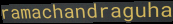
ramachandraguha